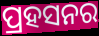
ପ୍ରହସନର